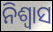
ନିଶ୍ଵାସ